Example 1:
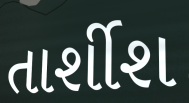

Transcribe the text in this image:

તાર્શીશ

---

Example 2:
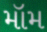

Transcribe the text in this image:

મૉમ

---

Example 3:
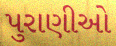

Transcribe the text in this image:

પુરાણીઓ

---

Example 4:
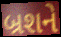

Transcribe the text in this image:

બ્રશને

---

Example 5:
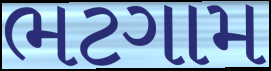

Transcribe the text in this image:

ભટગામ